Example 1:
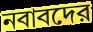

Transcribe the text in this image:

নবাবদের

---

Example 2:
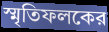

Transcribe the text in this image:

স্মৃতিফলকের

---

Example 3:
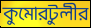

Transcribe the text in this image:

কুমোরটুলীর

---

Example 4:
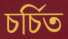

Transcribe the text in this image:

চর্চিত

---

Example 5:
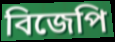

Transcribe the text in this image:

বিজেপি